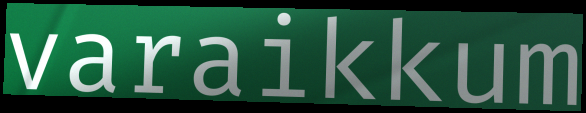
varaikkum